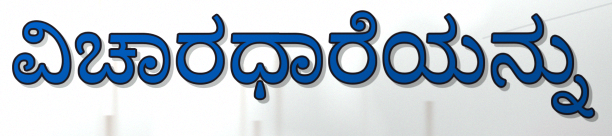
ವಿಚಾರಧಾರೆಯನ್ನು